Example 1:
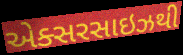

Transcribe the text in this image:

એક્સરસાઇઝથી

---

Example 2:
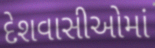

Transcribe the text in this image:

દેશવાસીઓમાં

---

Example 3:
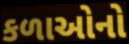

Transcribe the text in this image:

કળાઓનો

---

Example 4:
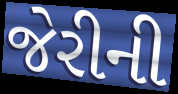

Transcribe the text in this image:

જેરીની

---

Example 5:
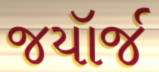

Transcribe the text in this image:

જયૉર્જ